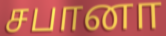
சபானா